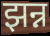
झन्न